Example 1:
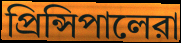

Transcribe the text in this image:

প্রিন্সিপালেরা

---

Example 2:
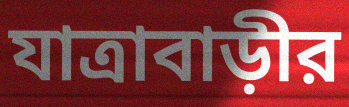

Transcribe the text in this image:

যাত্রাবাড়ীর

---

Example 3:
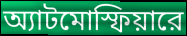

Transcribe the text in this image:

অ্যাটমোস্ফিয়ারে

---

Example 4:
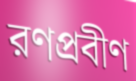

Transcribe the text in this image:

রণপ্রবীণ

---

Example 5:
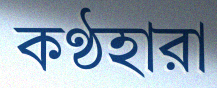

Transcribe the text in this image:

কণ্ঠহারা